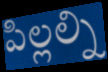
పిల్లల్ని